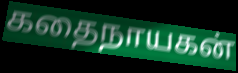
கதைநாயகன்